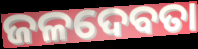
ଜଳଦେବତା